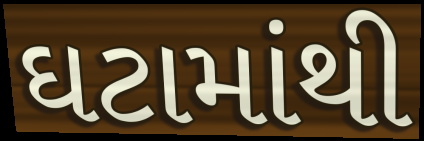
ઘટામાંથી